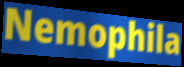
Nemophila